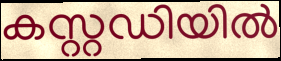
കസ്റ്റഡിയിൽ